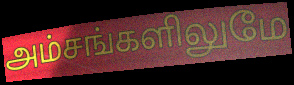
அம்சங்களிலுமே